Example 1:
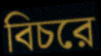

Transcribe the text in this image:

বিচরে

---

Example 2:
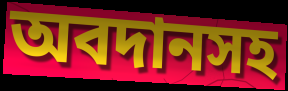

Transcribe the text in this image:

অবদানসহ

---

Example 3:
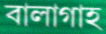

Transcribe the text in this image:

বালাগাহ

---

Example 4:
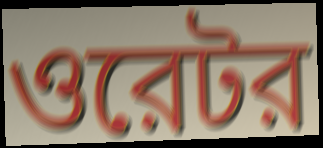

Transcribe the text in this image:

ওরেটর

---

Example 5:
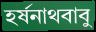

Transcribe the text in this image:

হর্ষনাথবাবু